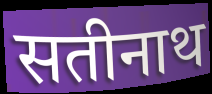
सतीनाथ